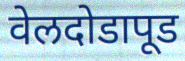
वेलदोडापूड